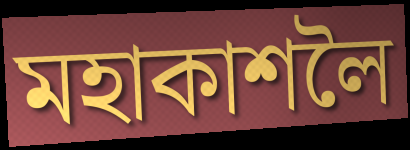
মহাকাশলৈ